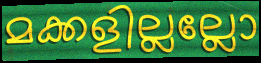
മക്കളില്ലല്ലോ